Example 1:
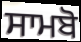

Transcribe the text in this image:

ਸਾਮਬੋ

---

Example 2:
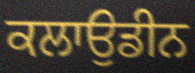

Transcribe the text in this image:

ਕਲਾਉਡੀਨ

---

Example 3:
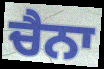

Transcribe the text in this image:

ਚੈਨਾ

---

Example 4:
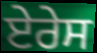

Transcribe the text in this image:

ਏਰੇਸ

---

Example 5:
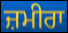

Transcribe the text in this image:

ਜ਼ਮੀਰਾ